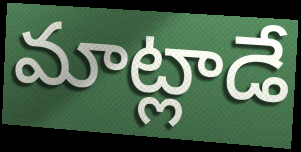
మాట్లాడే